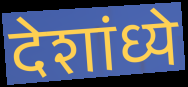
देशांध्ये